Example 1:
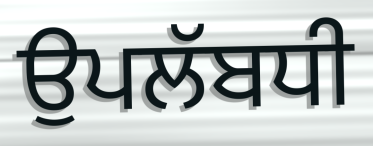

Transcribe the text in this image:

ਉਪਲੱਬਧੀ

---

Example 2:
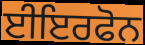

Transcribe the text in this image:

ਈਇਰਫੋਨ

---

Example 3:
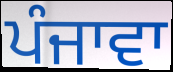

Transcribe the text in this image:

ਪੰਜਾਵਾ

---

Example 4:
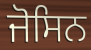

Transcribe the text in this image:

ਜੋਸਿਨ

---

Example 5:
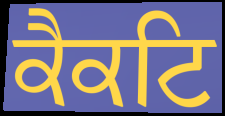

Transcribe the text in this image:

ਕੈਕਟਿ